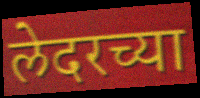
लेदरच्या